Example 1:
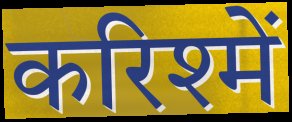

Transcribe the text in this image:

करिश्में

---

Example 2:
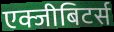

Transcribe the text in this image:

एक्जीबिटर्स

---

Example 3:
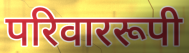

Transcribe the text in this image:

परिवाररूपी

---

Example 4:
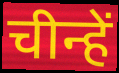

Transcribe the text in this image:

चीन्हें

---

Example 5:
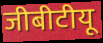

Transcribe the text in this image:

जीबीटीयू